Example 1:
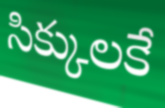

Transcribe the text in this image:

సిక్కులకే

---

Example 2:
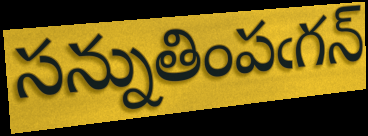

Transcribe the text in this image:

సన్నుతింపఁగన్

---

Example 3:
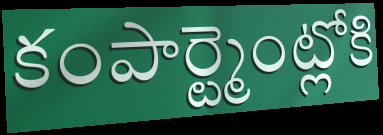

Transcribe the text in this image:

కంపార్ట్మెంట్లోకి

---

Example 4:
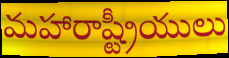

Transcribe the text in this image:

మహారాష్ట్రీయులు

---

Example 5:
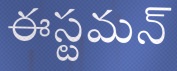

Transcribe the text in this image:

ఈస్టమన్